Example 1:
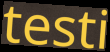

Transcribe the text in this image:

testi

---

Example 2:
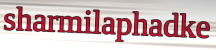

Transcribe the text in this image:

sharmilaphadke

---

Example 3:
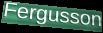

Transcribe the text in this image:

Fergusson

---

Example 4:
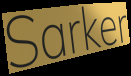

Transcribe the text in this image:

Sarker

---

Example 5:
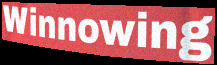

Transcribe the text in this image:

Winnowing